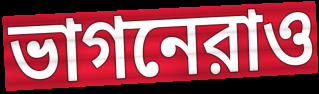
ভাগনেরাও